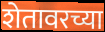
शेतावरच्या